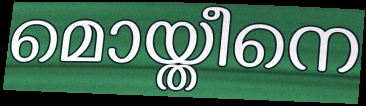
മൊയ്തീനെ